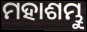
ମହାଶମ୍ଭୁ